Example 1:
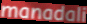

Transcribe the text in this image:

manadali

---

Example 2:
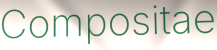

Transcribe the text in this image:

Compositae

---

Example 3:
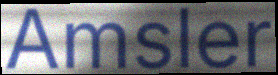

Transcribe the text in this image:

Amsler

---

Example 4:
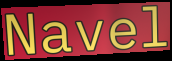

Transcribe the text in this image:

Navel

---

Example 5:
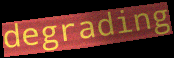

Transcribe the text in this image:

degrading